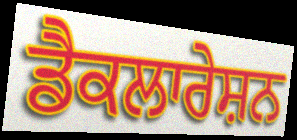
ਡੈਕਲਾਰੇਸ਼ਨ